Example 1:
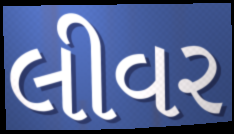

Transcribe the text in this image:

લીવર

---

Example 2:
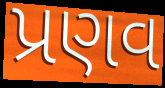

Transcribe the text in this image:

પ્રણવ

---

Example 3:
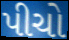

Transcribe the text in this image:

પીચો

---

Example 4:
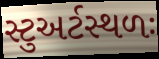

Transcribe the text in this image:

સ્ટુઅર્ટસ્થળઃ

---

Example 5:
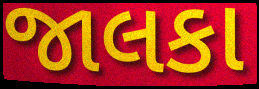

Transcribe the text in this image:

જાલકા